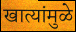
खात्यांमुळे